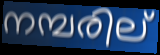
നമ്പരില്